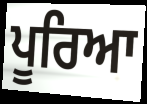
ਪੂਰਿਆ